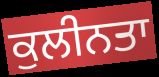
ਕੁਲੀਨਤਾ